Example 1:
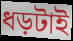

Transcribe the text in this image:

ধড়টাই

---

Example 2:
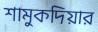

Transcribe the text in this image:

শামুকদিয়ার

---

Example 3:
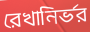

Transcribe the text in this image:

রেখানির্ভর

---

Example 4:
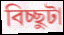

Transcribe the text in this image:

বিচ্ছুটা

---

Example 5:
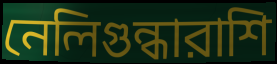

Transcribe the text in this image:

নেলিগুন্ধারাশি